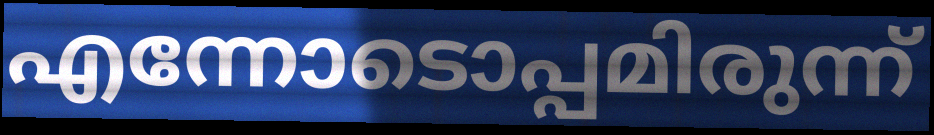
എന്നോടൊപ്പമിരുന്ന്